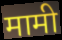
मामी